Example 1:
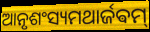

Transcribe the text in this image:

ଆନୃଶଂସ୍ୟମଥାର୍ଜଵମ୍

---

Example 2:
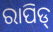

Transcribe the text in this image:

ରାପିଡ୍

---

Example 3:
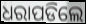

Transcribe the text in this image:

ଧରାପଡିଲେ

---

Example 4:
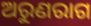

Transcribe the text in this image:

ଅରୁଣରାଗ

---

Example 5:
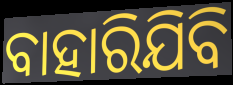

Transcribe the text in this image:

ବାହାରିଯିବି